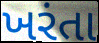
ખરંતા